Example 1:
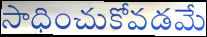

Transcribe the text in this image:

సాధించుకోవడమే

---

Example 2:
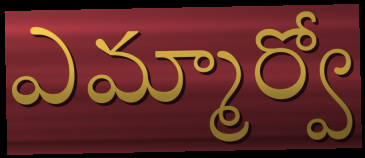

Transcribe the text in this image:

ఎమ్మార్వో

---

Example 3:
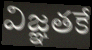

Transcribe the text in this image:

విజ్ఞతకే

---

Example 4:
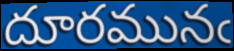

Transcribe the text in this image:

దూరమునఁ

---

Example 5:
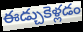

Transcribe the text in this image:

ఈడ్చుకెళ్లడం